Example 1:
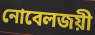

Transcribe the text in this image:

নোবেলজয়ী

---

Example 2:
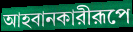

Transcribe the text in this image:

আহবানকারীরূপে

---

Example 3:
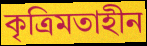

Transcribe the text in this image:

কৃত্রিমতাহীন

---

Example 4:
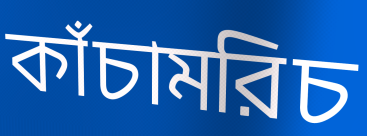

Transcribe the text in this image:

কাঁচামরিচ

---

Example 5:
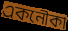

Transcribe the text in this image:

একনৌকা